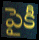
పైకీ